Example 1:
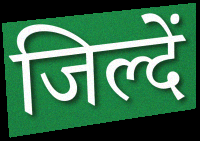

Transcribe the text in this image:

जिल्दें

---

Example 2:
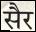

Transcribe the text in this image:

सैर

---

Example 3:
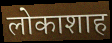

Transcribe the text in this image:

लोकाशाह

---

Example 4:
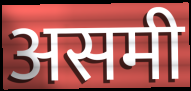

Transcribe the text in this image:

असमी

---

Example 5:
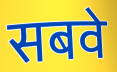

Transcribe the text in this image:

सबवे